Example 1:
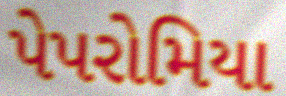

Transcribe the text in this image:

પેપરોમિયા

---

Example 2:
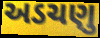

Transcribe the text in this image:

અડચણુ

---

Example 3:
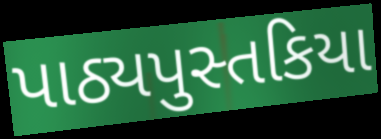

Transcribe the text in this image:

પાઠ્યપુસ્તકિયા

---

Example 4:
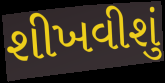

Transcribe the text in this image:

શીખવીશું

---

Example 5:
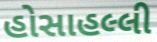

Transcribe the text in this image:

હોસાહલ્લી